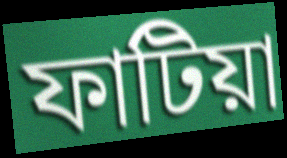
ফাটিয়া